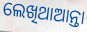
ଲେଖିଥାଆନ୍ତା